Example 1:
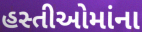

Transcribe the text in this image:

હસ્તીઓમાંના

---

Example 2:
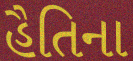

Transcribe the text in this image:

હૈતિના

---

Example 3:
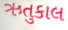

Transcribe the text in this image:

ઋતુકાલ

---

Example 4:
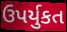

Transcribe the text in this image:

ઉપર્યુકત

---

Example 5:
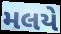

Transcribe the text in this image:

મલયે